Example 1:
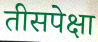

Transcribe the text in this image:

तीसपेक्षा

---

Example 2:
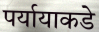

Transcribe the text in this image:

पर्यायाकडे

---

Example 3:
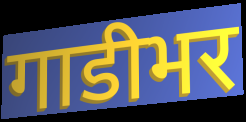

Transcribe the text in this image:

गाडीभर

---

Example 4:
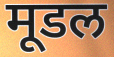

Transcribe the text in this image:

मूडल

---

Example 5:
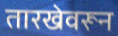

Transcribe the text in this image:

तारखेवरून